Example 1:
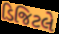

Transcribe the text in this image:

ડિજિટલે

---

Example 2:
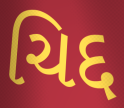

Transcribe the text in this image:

ચિદ્દ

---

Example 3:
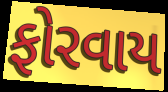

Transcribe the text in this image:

ફોરવાય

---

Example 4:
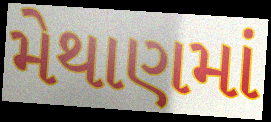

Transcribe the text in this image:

મેથાણમાં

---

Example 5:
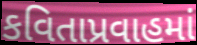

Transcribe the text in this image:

કવિતાપ્રવાહમાં